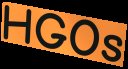
HGOs